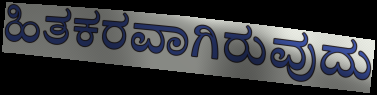
ಹಿತಕರವಾಗಿರುವುದು